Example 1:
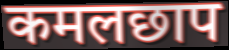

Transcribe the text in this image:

कमलछाप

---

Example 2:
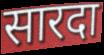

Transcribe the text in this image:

सारदा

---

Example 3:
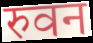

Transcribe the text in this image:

रुवन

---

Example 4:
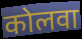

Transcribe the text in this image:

कोलवा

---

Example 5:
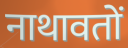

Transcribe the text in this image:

नाथावतों